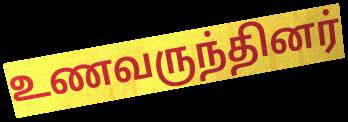
உணவருந்தினர்